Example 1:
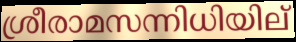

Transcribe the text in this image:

ശ്രീരാമസന്നിധിയില്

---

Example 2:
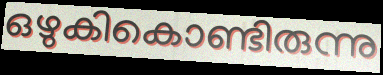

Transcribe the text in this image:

ഒഴുകികൊണ്ടിരുന്നു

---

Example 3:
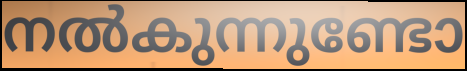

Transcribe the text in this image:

നൽകുന്നുണ്ടോ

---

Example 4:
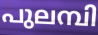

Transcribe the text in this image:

പുലമ്പി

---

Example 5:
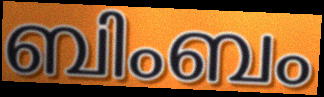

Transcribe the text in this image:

ബിംബം